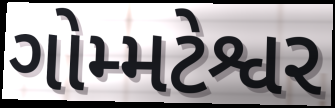
ગોમ્મટેશ્વર